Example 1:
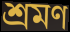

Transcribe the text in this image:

শ্রমণ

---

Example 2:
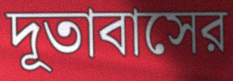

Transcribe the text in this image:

দূতাবাসের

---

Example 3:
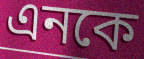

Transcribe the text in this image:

এনকে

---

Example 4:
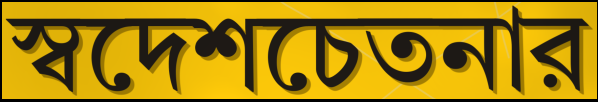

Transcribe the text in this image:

স্বদেশচেতনার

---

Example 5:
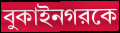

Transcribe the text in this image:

বুকাইনগরকে